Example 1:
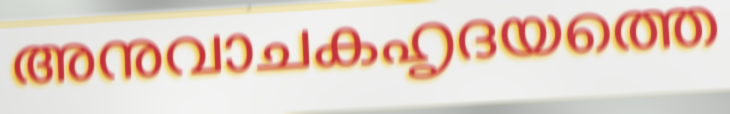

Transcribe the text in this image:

അനുവാചകഹൃദയത്തെ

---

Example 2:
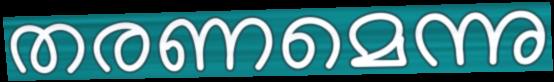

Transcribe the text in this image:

തരണമെന്നു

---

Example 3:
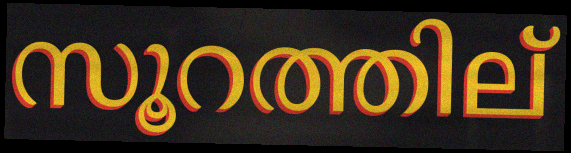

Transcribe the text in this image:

സൂറത്തില്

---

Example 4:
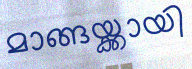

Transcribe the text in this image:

മാങ്ങയ്ക്കായി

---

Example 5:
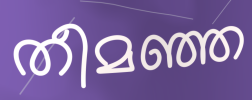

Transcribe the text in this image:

തീമഞ്ഞ